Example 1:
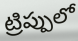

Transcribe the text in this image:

ట్రిప్పులో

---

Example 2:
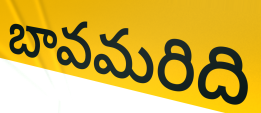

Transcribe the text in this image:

బావమరిది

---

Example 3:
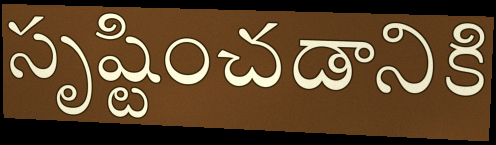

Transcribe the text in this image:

సృష్టించడానికి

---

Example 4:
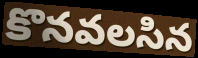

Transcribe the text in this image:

కొనవలసిన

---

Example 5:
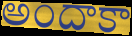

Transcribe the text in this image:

అందాకా